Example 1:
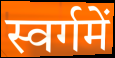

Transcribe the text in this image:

स्वर्गमें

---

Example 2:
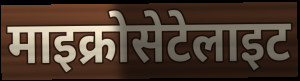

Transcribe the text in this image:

माइक्रोसेटेलाइट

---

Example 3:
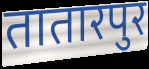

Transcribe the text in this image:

तातारपुर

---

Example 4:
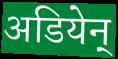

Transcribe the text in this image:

अडियेन्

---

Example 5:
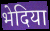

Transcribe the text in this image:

भेदिया